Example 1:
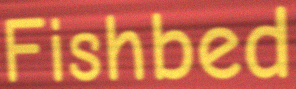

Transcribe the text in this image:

Fishbed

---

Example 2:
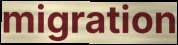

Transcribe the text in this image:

migration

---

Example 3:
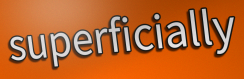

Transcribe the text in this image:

superficially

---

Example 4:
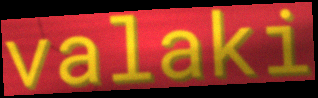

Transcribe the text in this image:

valaki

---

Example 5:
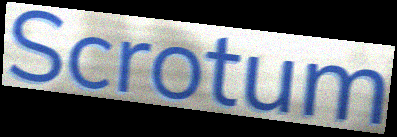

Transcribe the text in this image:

Scrotum